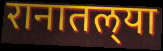
रानातल्या